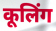
कूलिंग